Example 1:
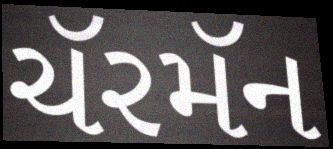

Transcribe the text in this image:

ચૅરમૅન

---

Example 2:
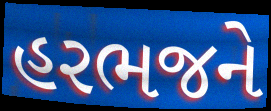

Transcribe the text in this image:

હરભજને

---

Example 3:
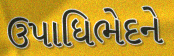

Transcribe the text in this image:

ઉપાધિભેદને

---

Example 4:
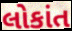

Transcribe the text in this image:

લોકાંત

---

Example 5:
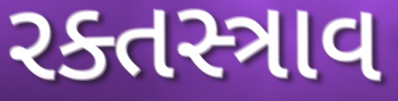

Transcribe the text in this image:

રક્તસ્ત્રાવ